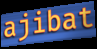
ajibat